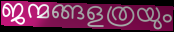
ജന്മങ്ങളത്രയും